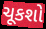
ચૂકશો